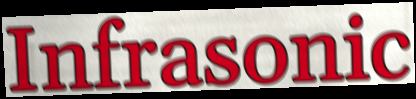
Infrasonic